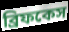
ব্রিফকেস